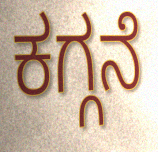
ಕಗ್ಗನೆ